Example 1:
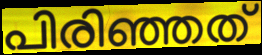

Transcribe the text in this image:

പിരിഞ്ഞത്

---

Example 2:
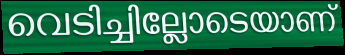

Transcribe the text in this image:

വെടിച്ചില്ലോടെയാണ്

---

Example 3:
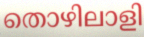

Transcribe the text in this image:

തൊഴിലാളി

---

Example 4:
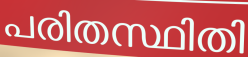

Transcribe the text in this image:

പരിതസ്ഥിതി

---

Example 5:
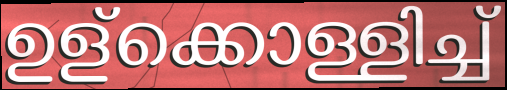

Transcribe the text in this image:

ഉള്ക്കൊള്ളിച്ച്